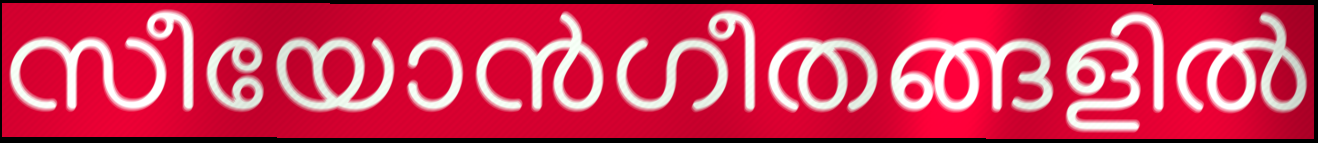
സീയോൻഗീതങ്ങളിൽ